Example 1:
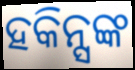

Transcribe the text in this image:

ହକିନ୍ସଙ୍କ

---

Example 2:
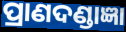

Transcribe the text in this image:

ପ୍ରାଣଦଣ୍ଡାଜ୍ଞା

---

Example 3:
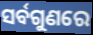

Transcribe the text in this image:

ସର୍ବଗୁଣରେ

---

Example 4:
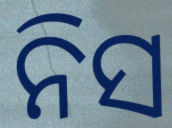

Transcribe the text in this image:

ନିସ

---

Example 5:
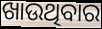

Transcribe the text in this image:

ଖାଉଥିବାର